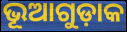
ଭୂଆଗୁଡ଼ାକ